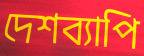
দেশব্যাপি